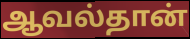
ஆவல்தான்